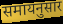
समायनुसार